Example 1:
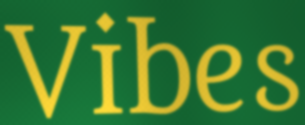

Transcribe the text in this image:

Vibes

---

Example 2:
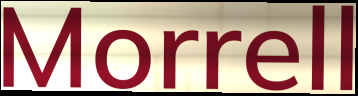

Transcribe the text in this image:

Morrell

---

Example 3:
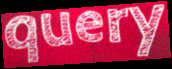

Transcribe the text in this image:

query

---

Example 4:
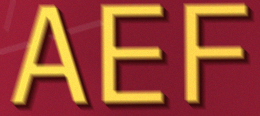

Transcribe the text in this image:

AEF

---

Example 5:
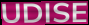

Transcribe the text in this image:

UDISE